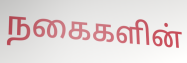
நகைகளின்